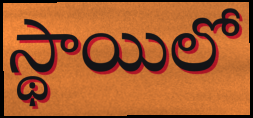
స్థాయిలో